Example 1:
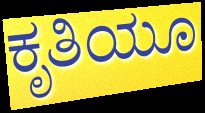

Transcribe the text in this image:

ಕೃತಿಯೂ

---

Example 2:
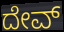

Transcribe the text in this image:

ದೇವ್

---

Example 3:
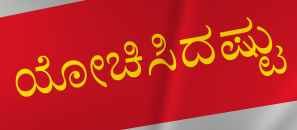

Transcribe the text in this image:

ಯೋಚಿಸಿದಷ್ಟು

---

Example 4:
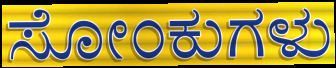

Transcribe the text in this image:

ಸೋಂಕುಗಳು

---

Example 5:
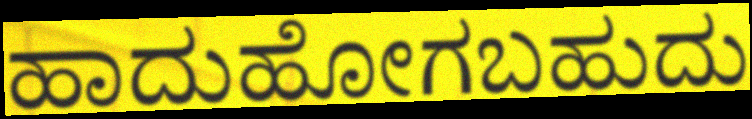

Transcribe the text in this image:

ಹಾದುಹೋಗಬಹುದು